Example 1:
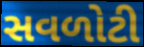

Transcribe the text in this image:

સવળોટી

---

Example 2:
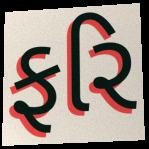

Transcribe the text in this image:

ફરિ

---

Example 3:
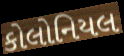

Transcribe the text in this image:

કોલોનિયલ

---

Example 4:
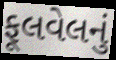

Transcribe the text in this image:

ફૂલવેલનું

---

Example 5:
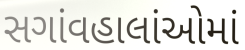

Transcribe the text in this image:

સગાંવહાલાંઓમાં